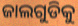
ଜାଲଗୁଡିକୁ